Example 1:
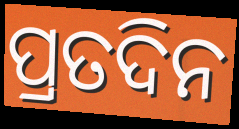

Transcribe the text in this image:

ପ୍ରତଦିନ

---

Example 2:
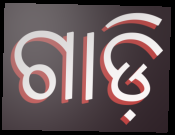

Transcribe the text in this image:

ଗାଡ଼ି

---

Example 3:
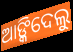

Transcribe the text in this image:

ଆଙ୍କିଦେଲୁ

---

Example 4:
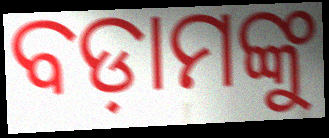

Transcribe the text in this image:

ବଡ଼ାମଙ୍କୁ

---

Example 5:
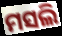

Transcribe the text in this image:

ମସଲି